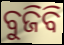
ବୁଜିବି